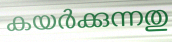
കയർക്കുന്നതു